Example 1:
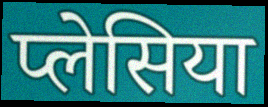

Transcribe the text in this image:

प्लेसिया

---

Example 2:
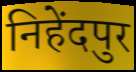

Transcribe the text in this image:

निहेंदपुर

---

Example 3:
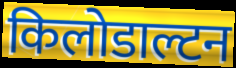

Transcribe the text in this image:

किलोडाल्टन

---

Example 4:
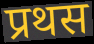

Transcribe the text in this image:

प्रथस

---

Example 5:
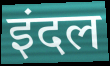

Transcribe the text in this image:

इंदल